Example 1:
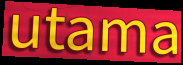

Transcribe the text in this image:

utama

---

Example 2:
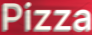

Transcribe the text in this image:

Pizza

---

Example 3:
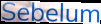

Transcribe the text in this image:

Sebelum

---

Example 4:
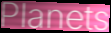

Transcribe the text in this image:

Planets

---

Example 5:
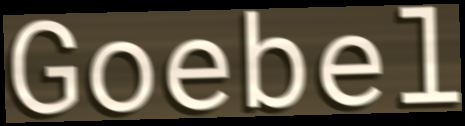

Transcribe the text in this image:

Goebel